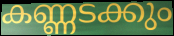
കണ്ണടക്കും